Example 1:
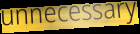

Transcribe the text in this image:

unnecessary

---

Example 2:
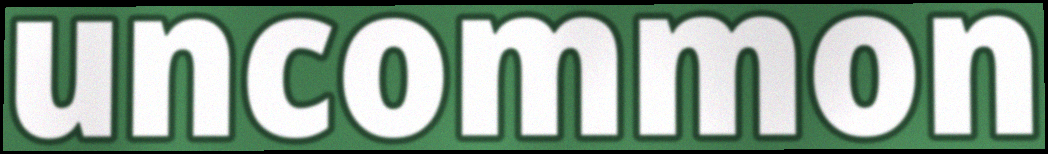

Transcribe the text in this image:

uncommon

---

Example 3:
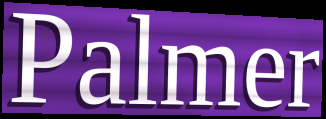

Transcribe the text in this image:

Palmer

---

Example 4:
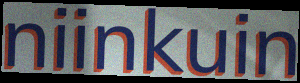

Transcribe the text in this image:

niinkuin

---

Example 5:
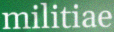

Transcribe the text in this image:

militiae